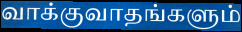
வாக்குவாதங்களும்